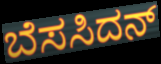
ಬೆಸಸಿದನ್